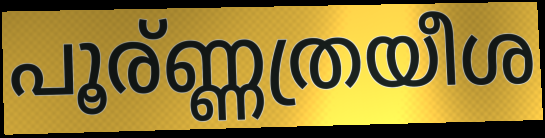
പൂര്ണ്ണത്രയീശ